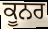
ਕੂਨਰ